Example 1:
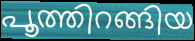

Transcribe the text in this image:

പൂത്തിറങ്ങിയ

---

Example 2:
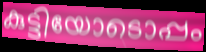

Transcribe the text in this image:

കുട്ടിയോടൊപ്പം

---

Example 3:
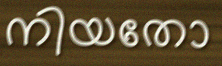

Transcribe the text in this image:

നിയതോ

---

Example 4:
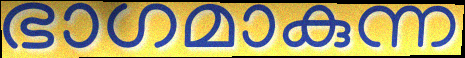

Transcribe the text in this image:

ഭാഗമാകുന്ന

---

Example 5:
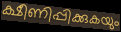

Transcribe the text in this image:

ക്ഷീണിപ്പിക്കുകയും